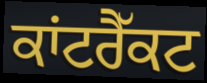
ਕਾਂਟਰੈੱਕਟ